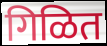
गिळित